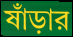
ষাঁড়ার